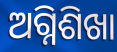
ଅଗ୍ନିଶିଖା